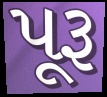
પૂરૂ